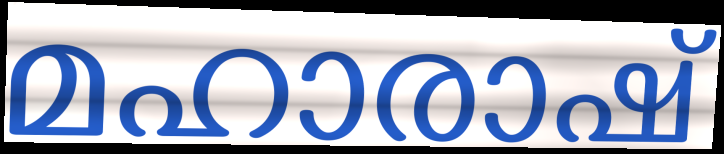
മഹാരാഷ്